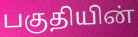
பகுதியின்